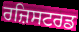
ਰਜ਼ਿਸਟਰਡ